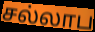
சல்லாப